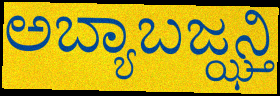
ಅಬ್ಯಾಬಜ್ಝನ್ತಿ